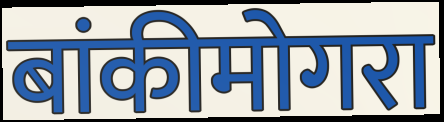
बांकीमोगरा